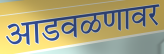
आडवळणावर